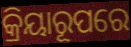
କ୍ରିୟାରୂପରେ